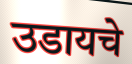
उडायचे